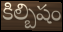
కిల్బిషం